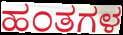
ಹಂತಗಳ